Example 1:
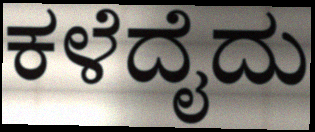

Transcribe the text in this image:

ಕಳೆದೈದು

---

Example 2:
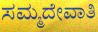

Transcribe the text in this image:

ಸಮ್ಮದೇವಾತಿ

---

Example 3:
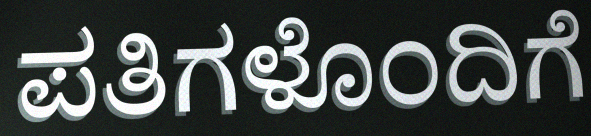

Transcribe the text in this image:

ಪತಿಗಳೊಂದಿಗೆ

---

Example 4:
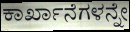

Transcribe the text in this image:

ಕಾರ್ಖಾನೆಗಳನ್ನೇ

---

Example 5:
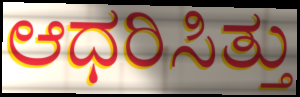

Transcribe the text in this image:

ಆಧರಿಸಿತ್ತು